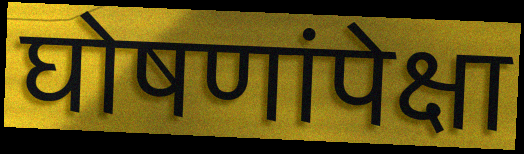
घोषणांपेक्षा